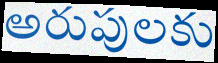
అరుపులకు